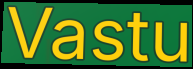
Vastu